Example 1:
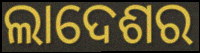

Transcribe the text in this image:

ଲାଦେଶର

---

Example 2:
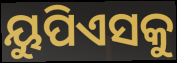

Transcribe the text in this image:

ୟୁପିଏସକୁ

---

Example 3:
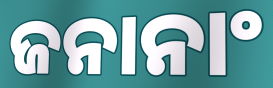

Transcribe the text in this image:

ଜନାନାଂ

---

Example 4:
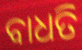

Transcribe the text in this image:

ବାଧତି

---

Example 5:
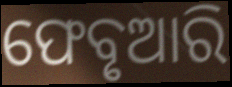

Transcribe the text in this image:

ଫେବୃଆରି